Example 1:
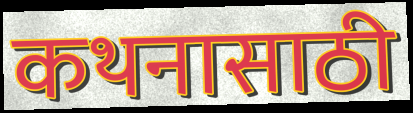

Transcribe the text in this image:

कथनासाठी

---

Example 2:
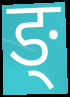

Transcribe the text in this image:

ङ्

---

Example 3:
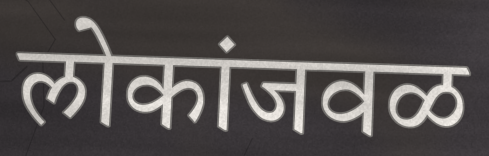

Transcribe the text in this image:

लोकांजवळ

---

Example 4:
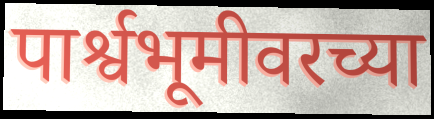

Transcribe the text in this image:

पार्श्वभूमीवरच्या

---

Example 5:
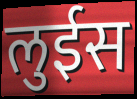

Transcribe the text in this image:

लुईस